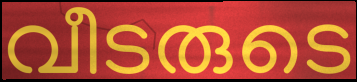
വീടരുടെ